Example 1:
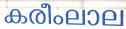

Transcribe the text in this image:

കരീംലാല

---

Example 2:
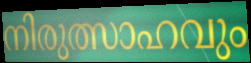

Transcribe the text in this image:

നിരുത്സാഹവും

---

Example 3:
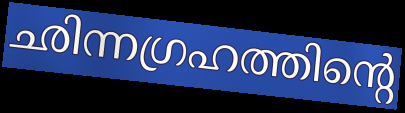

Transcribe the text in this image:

ഛിന്നഗ്രഹത്തിന്റെ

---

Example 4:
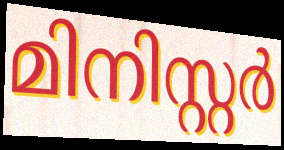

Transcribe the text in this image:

മിനിസ്റ്റർ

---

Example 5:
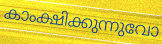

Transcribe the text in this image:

കാംക്ഷിക്കുന്നുവോ